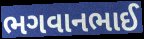
ભગવાનભાઈ